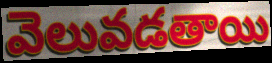
వెలువడతాయి